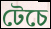
টেচে